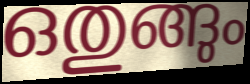
ഒതുങ്ങും